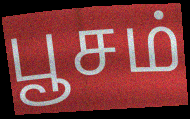
பூசம்